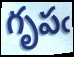
గృపఁ